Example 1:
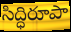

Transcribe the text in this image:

సిద్ధిరూపా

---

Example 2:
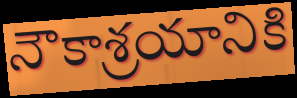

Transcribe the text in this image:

నౌకాశ్రయానికి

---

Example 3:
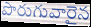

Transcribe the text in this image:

పొరుగువారైన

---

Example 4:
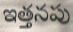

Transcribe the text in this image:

ఇత్తనపు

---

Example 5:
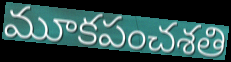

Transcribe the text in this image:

మూకపంచశతి